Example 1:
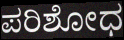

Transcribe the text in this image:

ಪರಿಶೋಧ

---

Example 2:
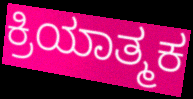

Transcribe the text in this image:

ಕ್ರಿಯಾತ್ಮಕ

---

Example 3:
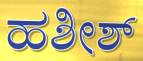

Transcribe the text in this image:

ಹಶೀಶ್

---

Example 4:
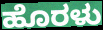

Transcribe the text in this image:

ಹೊರಳು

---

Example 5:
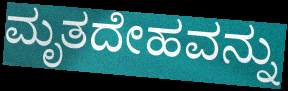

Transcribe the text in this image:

ಮೃತದೇಹವನ್ನು